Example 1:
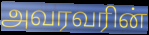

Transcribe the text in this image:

அவரவரின்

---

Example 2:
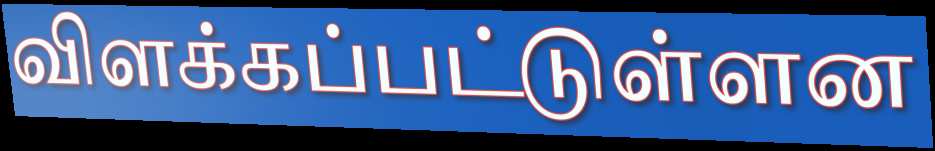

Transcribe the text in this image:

விளக்கப்பட்டுள்ளன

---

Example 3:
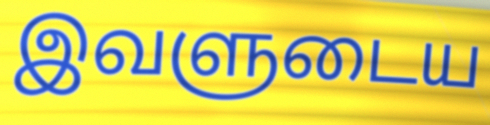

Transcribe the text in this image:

இவளுடைய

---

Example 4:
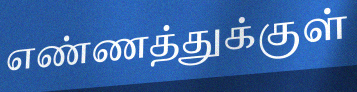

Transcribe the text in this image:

எண்ணத்துக்குள்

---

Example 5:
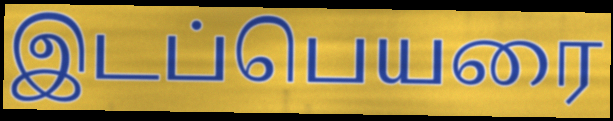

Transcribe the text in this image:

இடப்பெயரை